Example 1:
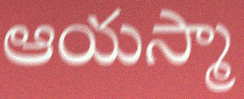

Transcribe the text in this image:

ఆయస్మా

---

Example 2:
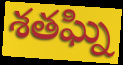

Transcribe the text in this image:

శతఘ్ని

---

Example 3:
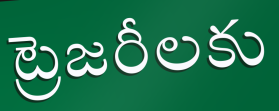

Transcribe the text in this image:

ట్రెజరీలకు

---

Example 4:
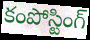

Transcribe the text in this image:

కంపోస్టింగ్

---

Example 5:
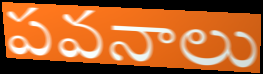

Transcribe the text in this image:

పవనాలు